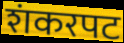
शंकरपट